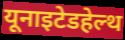
यूनाइटेडहेल्थ